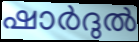
ഷാർദുൽ